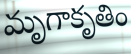
మృగాకృతిం